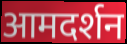
आमदर्शन